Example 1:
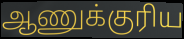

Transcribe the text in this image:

ஆணுக்குரிய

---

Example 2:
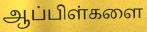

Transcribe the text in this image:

ஆப்பிள்களை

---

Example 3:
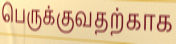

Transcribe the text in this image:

பெருக்குவதற்காக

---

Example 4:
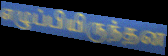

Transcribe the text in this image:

எழுப்பியிருந்தன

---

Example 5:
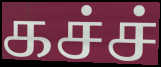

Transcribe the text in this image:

கச்ச்